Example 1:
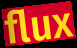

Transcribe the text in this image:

flux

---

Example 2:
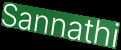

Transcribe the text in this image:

Sannathi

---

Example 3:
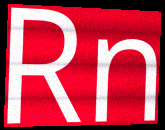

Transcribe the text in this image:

Rn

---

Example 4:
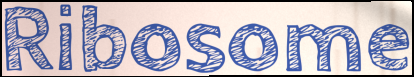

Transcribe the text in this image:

Ribosome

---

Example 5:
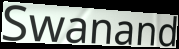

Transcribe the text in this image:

Swanand